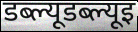
डब्ल्यूडब्ल्यूइ